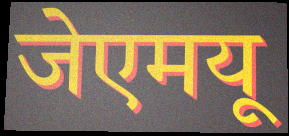
जेएमयू